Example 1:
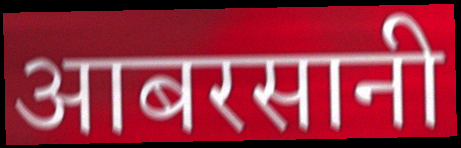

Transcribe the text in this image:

आबरसानी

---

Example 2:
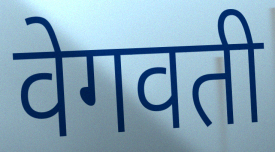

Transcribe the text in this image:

वेगवती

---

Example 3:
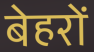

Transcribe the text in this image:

बेहरों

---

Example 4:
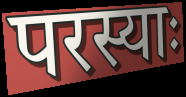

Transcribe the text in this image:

परस्याः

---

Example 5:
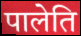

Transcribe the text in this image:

पालेति